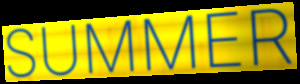
SUMMER